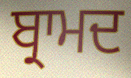
ਬ੍ਰਾਮਦ